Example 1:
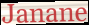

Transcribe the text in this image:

Janane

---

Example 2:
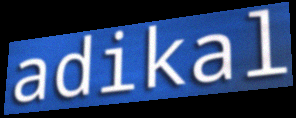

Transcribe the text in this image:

adikal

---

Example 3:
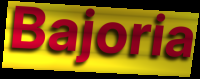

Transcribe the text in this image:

Bajoria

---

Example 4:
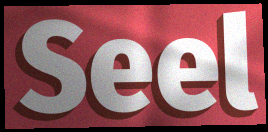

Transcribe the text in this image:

Seel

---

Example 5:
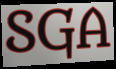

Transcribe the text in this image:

SGA